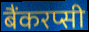
बैंकरप्सी